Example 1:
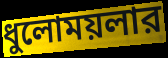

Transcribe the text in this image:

ধুলোময়লার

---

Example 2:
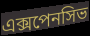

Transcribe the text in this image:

এক্সপেনসিভ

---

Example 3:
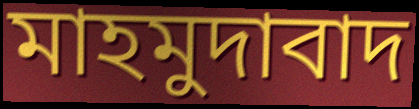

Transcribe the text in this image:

মাহমুদাবাদ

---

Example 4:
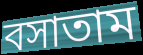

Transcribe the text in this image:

বসাতাম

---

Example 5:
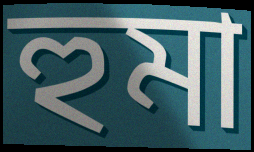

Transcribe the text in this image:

হুমা